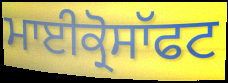
ਮਾਈਕ੍ਰੋਸਾੱਫਟ